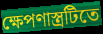
ক্ষেপণাস্ত্রটিতে